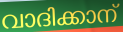
വാദിക്കാന്